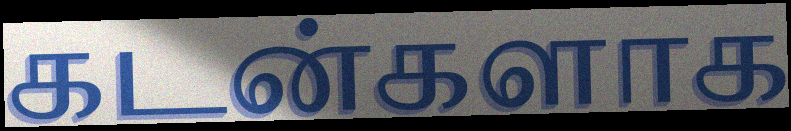
கடன்களாக